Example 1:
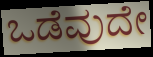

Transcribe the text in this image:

ಒಡೆವುದೇ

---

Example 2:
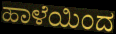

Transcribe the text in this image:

ಹಾಳೆಯಿಂದ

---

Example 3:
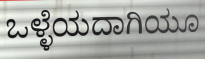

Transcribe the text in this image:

ಒಳ್ಳೆಯದಾಗಿಯೂ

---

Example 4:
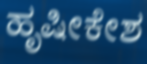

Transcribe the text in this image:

ಹೃಷೀಕೇಶ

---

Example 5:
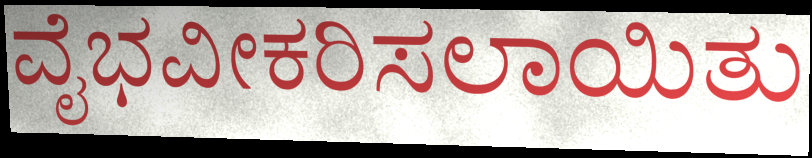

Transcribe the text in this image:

ವೈಭವೀಕರಿಸಲಾಯಿತು